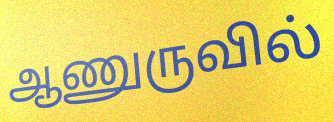
ஆணுருவில்